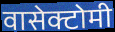
वासेक्टोमी